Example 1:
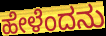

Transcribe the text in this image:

ಹೇಳೆಂದನು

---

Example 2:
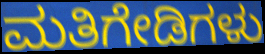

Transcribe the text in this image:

ಮತಿಗೇಡಿಗಳು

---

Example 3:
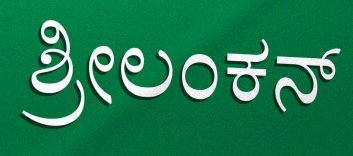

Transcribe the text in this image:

ಶ್ರೀಲಂಕನ್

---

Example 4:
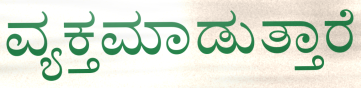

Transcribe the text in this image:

ವ್ಯಕ್ತಮಾಡುತ್ತಾರೆ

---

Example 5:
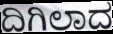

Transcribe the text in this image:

ದಿಗಿಲಾದ